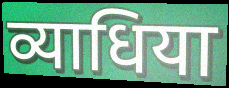
व्याधिया